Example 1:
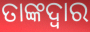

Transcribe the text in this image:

ତାଙ୍କଦ୍ୱାର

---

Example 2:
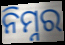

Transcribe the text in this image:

ନିମ୍ନର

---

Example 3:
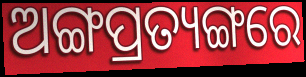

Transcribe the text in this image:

ଅଙ୍ଗପ୍ରତ୍ୟଙ୍ଗରେ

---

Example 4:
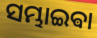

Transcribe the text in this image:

ସମ୍ଭାଇଵା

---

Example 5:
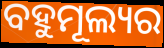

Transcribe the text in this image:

ବହୁମୂଲ୍ୟର